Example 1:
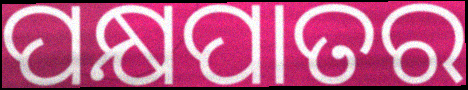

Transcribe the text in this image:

ପକ୍ଷପାତର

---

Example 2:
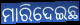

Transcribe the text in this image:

ମାରିଦେଇଛ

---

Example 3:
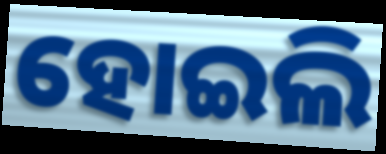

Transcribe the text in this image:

ହୋଇଲି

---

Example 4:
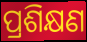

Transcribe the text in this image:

ପ୍ରଶିକ୍ଷଣ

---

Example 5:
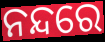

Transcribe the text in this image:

ନନ୍ଦରେ